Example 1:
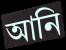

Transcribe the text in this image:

আনি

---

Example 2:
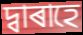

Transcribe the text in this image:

দ্বাৰাহে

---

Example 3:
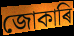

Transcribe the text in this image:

জোকাৰি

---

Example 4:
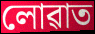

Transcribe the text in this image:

লোৱাত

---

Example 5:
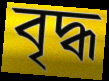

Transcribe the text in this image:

বৃদ্ধ